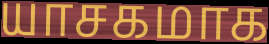
யாசகமாக